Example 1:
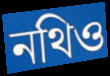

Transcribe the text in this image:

নথিও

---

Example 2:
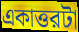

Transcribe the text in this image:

একাত্তরটা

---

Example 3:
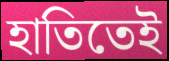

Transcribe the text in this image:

হাতিতেই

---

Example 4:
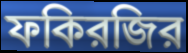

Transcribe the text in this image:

ফকিরজির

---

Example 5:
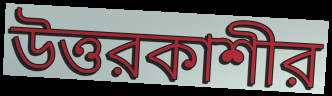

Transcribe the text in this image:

উত্তরকাশীর